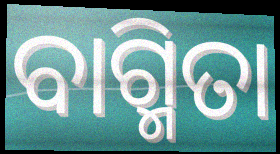
ବାଗ୍ମିତା